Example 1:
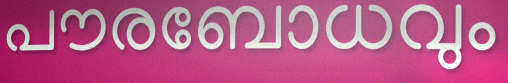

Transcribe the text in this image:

പൗരബോധവും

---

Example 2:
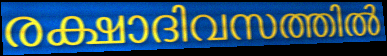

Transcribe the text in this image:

രക്ഷാദിവസത്തിൽ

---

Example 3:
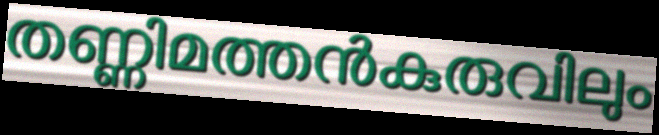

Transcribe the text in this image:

തണ്ണിമത്തൻകുരുവിലും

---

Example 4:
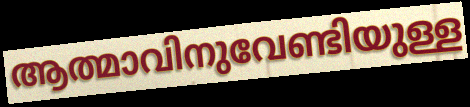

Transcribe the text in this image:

ആത്മാവിനുവേണ്ടിയുള്ള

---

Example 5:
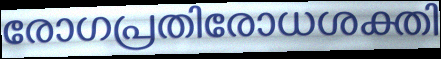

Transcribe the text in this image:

രോഗപ്രതിരോധശക്തി